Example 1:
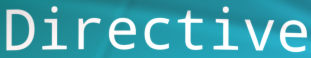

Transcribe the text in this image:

Directive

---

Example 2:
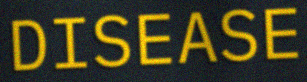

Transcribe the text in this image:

DISEASE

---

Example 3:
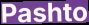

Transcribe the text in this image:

Pashto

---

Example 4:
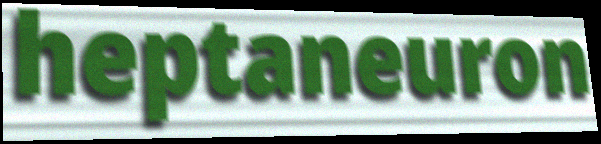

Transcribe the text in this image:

heptaneuron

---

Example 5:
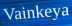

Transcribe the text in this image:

Vainkeya